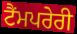
ਟੈਂਮਪਰੇਰੀ